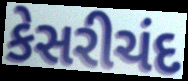
કેસરીચંદ